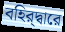
বহির্‌দ্বারে